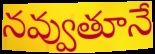
నవ్వుతూనే